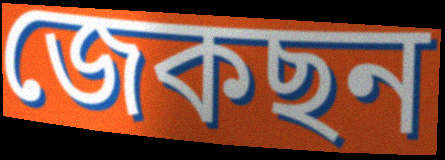
জেকছন